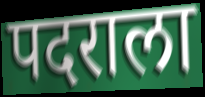
पदराला